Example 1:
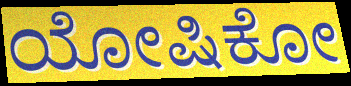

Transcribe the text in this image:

ಯೋಷಿಕೋ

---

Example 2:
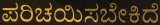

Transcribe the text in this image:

ಪರಿಚಯಿಸಬೇಕಿದೆ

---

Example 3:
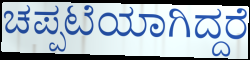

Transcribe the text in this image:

ಚಪ್ಪಟೆಯಾಗಿದ್ದರೆ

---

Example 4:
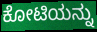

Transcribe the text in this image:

ಕೋಟಿಯನ್ನು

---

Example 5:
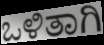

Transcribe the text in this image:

ಒಳಿತಾಗಿ